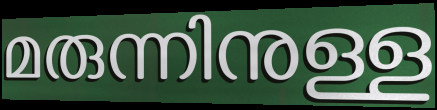
മരുന്നിനുള്ള